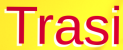
Trasi